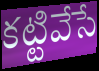
కట్టివేసే